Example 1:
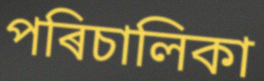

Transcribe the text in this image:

পৰিচালিকা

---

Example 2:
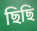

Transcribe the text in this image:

ছিছি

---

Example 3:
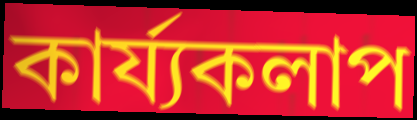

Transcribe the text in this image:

কাৰ্য্যকলাপ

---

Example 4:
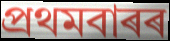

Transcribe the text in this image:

প্ৰথমবাৰৰ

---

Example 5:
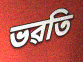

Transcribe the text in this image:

ভৱতি